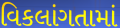
વિકલાંગતામાં